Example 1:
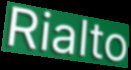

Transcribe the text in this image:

Rialto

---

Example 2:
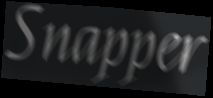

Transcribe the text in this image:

Snapper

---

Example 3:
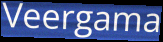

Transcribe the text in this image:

Veergama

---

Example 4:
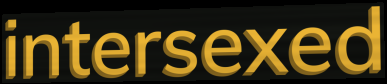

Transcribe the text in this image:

intersexed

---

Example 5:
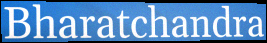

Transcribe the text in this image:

Bharatchandra